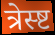
त्रेस्ष्ट